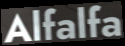
Alfalfa